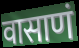
वासाणं